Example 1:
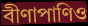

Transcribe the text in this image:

বীণাপাণিও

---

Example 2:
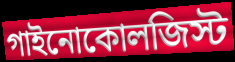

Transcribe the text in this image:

গাইনোকোলজিস্ট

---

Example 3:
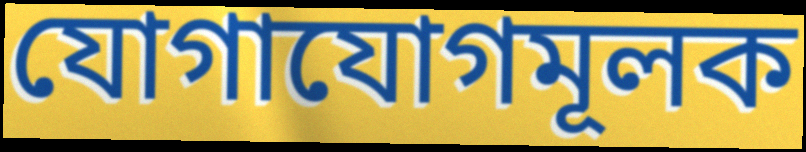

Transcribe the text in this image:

যোগাযোগমূলক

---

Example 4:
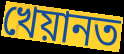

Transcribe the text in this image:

খেয়ানত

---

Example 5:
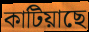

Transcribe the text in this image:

কাটিয়াছে